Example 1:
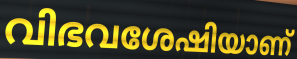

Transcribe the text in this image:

വിഭവശേഷിയാണ്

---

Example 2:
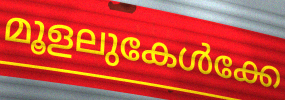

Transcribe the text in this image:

മൂളലുകേൾക്കേ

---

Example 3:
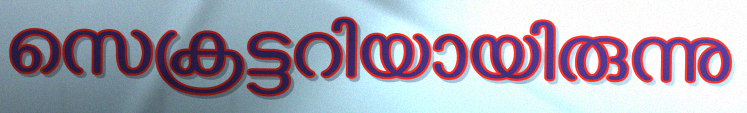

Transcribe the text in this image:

സെക്രട്ടറിയായിരുന്നു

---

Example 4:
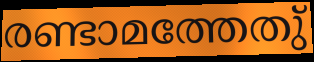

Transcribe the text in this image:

രണ്ടാമത്തേതു്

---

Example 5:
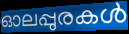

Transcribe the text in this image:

ഓലപ്പുരകൾ